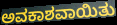
ಅವಕಾಶವಾಯಿತು